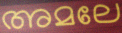
അമലേ